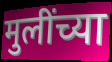
मुलींच्या